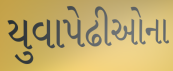
યુવાપેઢીઓના